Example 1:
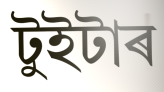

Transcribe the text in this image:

টুইটাৰ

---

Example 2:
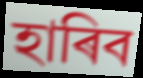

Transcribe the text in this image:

হাৰিব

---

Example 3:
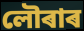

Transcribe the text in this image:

লৌৰাৰ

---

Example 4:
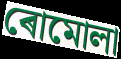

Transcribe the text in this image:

ৰোমোলা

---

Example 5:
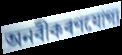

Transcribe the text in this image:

অনবীকৰণযোগ্য